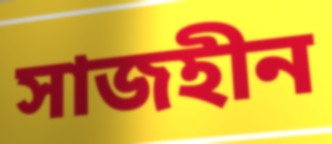
সাজহীন